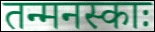
तन्मनस्काः